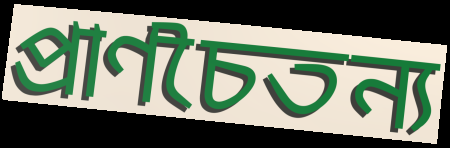
প্রাণচৈতন্য